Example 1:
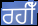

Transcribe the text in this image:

ਰਹੀਁ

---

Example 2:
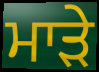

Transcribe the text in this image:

ਮਾੜੇ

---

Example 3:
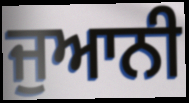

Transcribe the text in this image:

ਜੁਆਨੀ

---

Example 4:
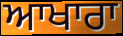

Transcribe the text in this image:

ਆਖਾਰਾ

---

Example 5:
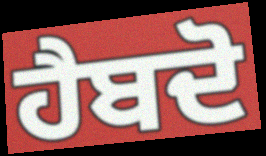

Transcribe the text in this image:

ਹੈਬਦੋ